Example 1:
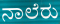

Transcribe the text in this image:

ನಾಲೆರು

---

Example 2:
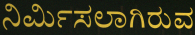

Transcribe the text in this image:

ನಿರ್ಮಿಸಲಾಗಿರುವ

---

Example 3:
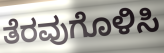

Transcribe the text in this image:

ತೆರವುಗೊಳಿಸಿ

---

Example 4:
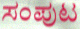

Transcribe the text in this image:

ಸಂಪುಟ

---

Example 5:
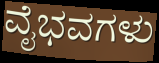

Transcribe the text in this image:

ವೈಭವಗಳು